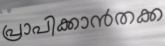
പ്രാപിക്കാൻതക്ക